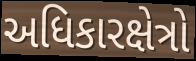
અધિકારક્ષેત્રો